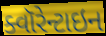
ક્વૉરેન્ટાઇન